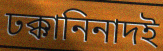
ঢক্কানিনাদই